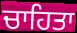
ਚਾਹਿਤਾ